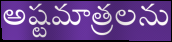
అష్టమాత్రలను